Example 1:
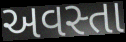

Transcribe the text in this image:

અવસ્તા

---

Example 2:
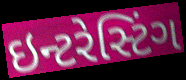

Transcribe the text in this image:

ઇન્ટરેસ્ટિંગ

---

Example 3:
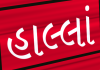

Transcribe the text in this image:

હાલ્લાં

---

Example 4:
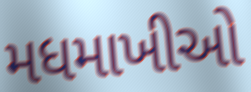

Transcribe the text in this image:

મધમાખીઓ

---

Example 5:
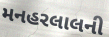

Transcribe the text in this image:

મનહરલાલની